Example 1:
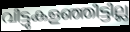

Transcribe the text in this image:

വിട്ടുകളഞ്ഞിട്ടില്ല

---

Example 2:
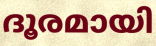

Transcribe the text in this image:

ദൂരമായി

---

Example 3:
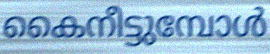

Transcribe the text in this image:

കൈനീട്ടുമ്പോൾ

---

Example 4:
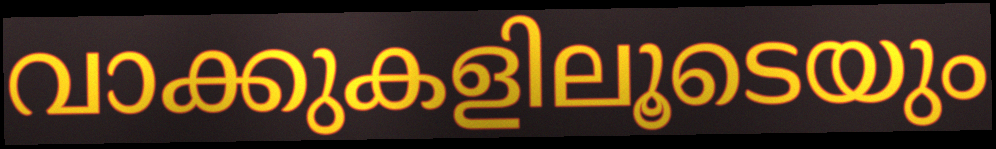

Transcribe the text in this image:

വാക്കുകളിലൂടെയും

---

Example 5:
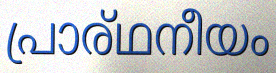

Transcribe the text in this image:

പ്രാര്ഥനീയം